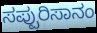
ಸಪ್ಪುರಿಸಾನಂ